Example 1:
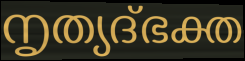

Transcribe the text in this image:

നൃത്യദ്ഭക്ത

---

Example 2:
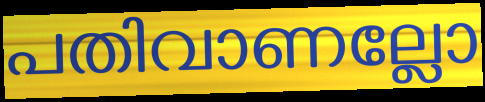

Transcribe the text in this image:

പതിവാണല്ലോ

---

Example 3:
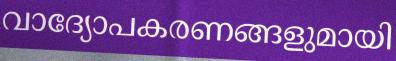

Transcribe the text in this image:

വാദ്യോപകരണങ്ങളുമായി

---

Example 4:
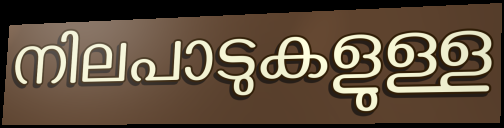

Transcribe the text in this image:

നിലപാടുകളുള്ള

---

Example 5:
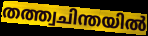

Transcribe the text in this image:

തത്ത്വചിന്തയിൽ